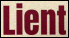
Lient